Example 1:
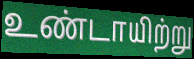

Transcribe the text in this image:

உண்டாயிற்று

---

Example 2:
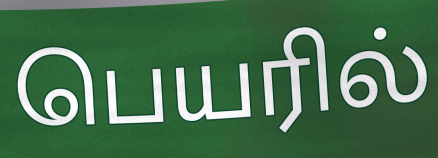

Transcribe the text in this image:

பெயரில்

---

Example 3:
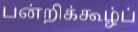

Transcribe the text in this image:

பன்றிக்கூழ்ப்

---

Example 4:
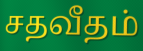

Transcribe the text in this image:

சதவீதம்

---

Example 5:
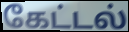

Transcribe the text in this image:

கேட்டல்